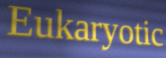
Eukaryotic